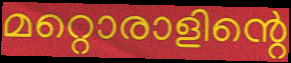
മറ്റൊരാളിന്റെ